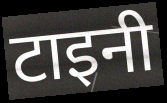
टाइनी